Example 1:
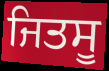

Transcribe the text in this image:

ਜਿਤਸੂ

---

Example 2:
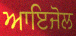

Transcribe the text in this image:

ਆਇਜੋਲ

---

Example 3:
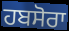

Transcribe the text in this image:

ਹਬਸੋਰਾ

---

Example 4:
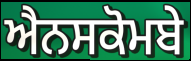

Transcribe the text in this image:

ਐਨਸਕੋਮਬੇ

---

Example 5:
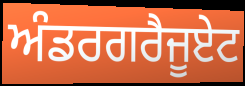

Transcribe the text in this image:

ਅੰਡਰਗਰੈਜੂਏਟ